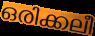
ഒരിക്കലീ